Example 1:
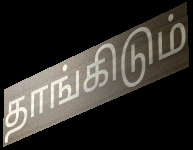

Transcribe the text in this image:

தாங்கிடும்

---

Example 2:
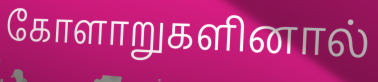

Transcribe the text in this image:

கோளாறுகளினால்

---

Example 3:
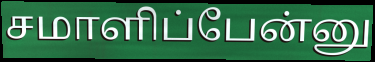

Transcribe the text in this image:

சமாளிப்பேன்னு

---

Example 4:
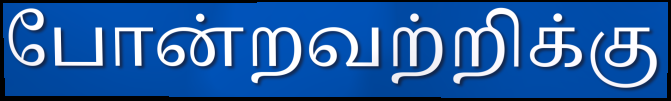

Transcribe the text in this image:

போன்றவற்றிக்கு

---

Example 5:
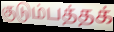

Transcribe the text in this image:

குடும்பத்தக்